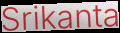
Srikanta